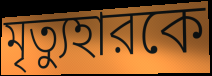
মৃত্যুহারকে